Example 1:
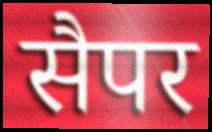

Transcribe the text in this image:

सैपर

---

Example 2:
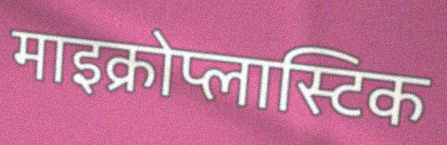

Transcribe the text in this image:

माइक्रोप्लास्टिक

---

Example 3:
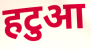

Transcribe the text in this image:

हटुआ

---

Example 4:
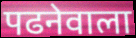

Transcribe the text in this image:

पढनेवाला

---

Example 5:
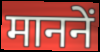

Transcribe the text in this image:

माननें